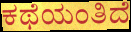
ಕಥೆಯಂತಿದೆ